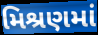
મિશ્રણમાં